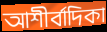
আশীর্বাদিকা